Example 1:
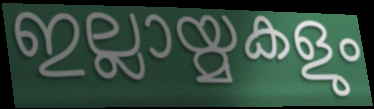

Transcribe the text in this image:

ഇല്ലായ്മകളും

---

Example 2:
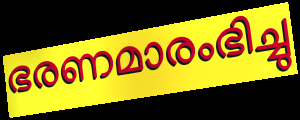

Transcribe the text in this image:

ഭരണമാരംഭിച്ചു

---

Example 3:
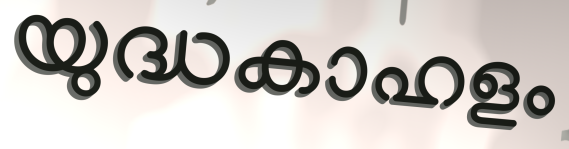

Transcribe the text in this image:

യുദ്ധകാഹളം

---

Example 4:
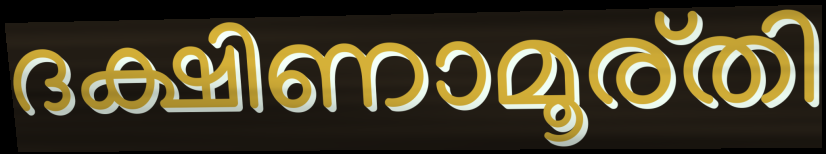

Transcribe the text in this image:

ദക്ഷിണാമൂര്തി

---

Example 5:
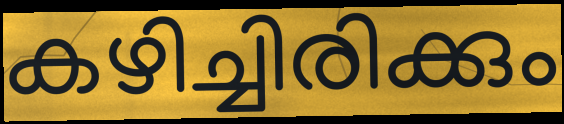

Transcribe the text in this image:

കഴിച്ചിരിക്കും